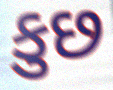
કુછ